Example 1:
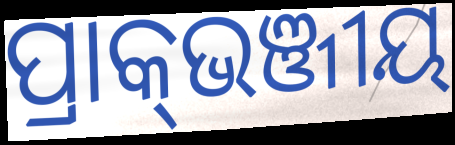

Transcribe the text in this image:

ପ୍ରାକ୍‌ଭଞ୍ଜୀୟ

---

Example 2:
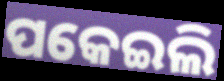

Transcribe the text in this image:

ପକେଇଲି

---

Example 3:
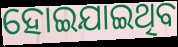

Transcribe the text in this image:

ହୋଇଯାଇଥିବ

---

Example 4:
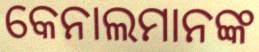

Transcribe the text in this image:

କେନାଲମାନଙ୍କ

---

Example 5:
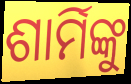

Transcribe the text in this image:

ଶାର୍ମିଙ୍କୁ